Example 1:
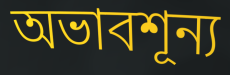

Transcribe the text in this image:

অভাবশূন্য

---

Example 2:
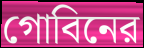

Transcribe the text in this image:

গোবিনের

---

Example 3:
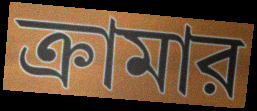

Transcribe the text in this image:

ক্রামার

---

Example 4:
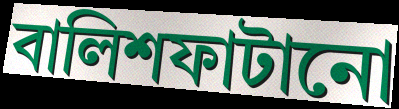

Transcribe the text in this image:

বালিশফাটানো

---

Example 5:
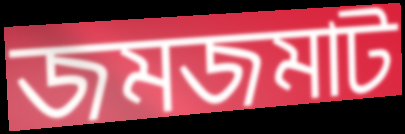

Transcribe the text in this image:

জমজমাট